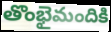
తొంభైమందికి